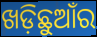
ଖଡ଼ିଛୁଆଁର